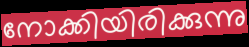
നോക്കിയിരിക്കുന്നു